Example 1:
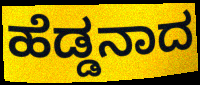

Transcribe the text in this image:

ಹೆಡ್ಡನಾದ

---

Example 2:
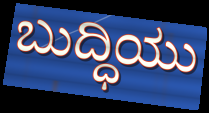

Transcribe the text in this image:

ಬುದ್ಧಿಯು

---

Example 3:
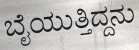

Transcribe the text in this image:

ಬೈಯುತ್ತಿದ್ದನು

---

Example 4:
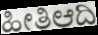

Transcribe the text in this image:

ಹೀತಿಆದಿ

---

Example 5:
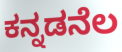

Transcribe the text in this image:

ಕನ್ನಡನೆಲ